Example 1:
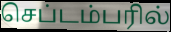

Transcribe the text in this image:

செப்டம்பரில்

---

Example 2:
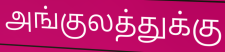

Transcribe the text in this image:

அங்குலத்துக்கு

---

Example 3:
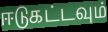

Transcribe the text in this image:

ஈடுகட்டவும்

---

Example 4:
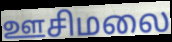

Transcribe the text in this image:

ஊசிமலை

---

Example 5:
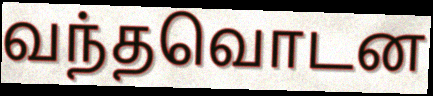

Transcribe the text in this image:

வந்தவொடன